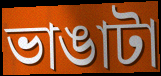
ভাঙাটা